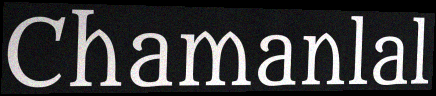
Chamanlal